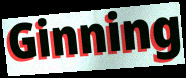
Ginning